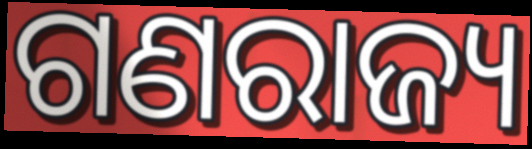
ଗଣରାଜ୍ୟ